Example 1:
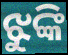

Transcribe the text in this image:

ଝୁଙ୍କି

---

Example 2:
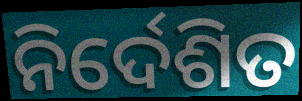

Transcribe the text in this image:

ନିର୍ଦେଶିତ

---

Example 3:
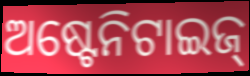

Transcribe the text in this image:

ଅଷ୍ଟେନିଟାଇଜ୍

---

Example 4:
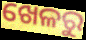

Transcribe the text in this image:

ଖେଳରୁ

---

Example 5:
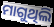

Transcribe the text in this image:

ମାଗୁଥିଲି